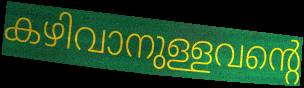
കഴിവാനുള്ളവന്റെ